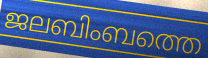
ജലബിംബത്തെ